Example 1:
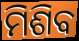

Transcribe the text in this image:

ମିଶିବ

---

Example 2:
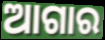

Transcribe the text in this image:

ଆଗାର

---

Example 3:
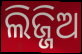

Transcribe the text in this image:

ଲିଜ୍ଜିଅ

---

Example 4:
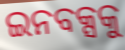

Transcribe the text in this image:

ଇନବକ୍ସକୁ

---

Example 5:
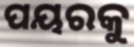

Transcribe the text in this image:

ପୟରକୁ